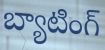
బ్యాటింగ్